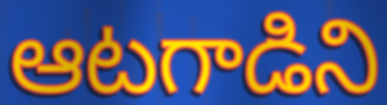
ఆటగాడిని